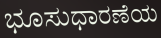
ಭೂಸುಧಾರಣೆಯ